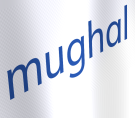
mughal